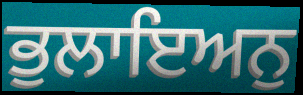
ਭੁਲਾਇਅਨੁ